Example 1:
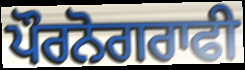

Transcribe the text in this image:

ਪੌਰਨੋਗਰਾਫੀ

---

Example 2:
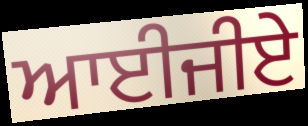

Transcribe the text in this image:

ਆਈਜੀਏ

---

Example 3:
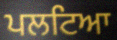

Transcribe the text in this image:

ਪਲਟਿਆ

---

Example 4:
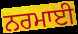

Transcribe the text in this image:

ਨਰਮਾਈ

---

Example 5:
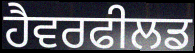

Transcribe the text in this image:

ਹੈਵਰਫੀਲਡ